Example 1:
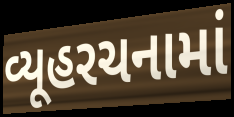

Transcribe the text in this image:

વ્યૂહરચનામાં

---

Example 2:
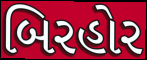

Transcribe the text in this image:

બિરહોર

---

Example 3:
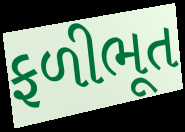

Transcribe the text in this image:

ફળીભૂત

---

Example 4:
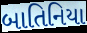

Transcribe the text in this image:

બાતિનિયા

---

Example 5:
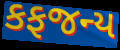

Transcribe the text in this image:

કફજન્ય